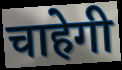
चाहेगी